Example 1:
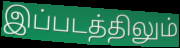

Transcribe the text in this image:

இப்படத்திலும்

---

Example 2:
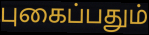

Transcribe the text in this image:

புகைப்பதும்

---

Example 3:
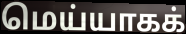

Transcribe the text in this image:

மெய்யாகக்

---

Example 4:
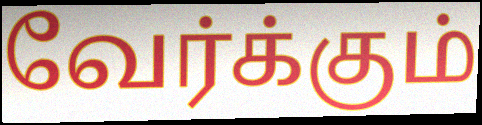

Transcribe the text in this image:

வேர்க்கும்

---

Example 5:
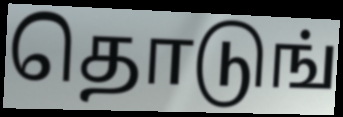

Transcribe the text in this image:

தொடுங்